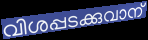
വിശപ്പടക്കുവാന്